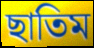
ছাতিম